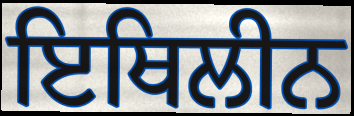
ਇਥਿਲੀਨ